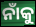
ନାଁକୁ